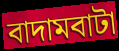
বাদামবাটা